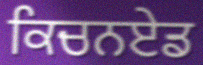
ਕਿਚਨਏਡ